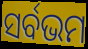
ସର୍ବଭମ